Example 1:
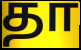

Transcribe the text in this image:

தா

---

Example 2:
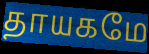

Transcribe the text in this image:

தாயகமே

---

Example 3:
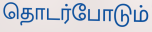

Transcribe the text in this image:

தொடர்போடும்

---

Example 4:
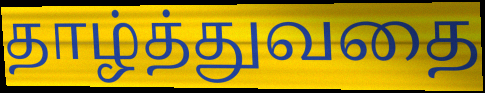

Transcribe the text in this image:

தாழ்த்துவதை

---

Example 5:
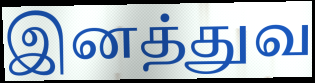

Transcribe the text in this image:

இனத்துவ